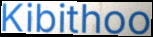
Kibithoo